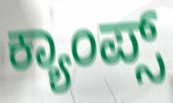
ಕ್ಯಾಂಪ್ಸ್